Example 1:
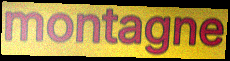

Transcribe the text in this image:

montagne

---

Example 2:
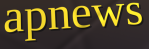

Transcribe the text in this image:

apnews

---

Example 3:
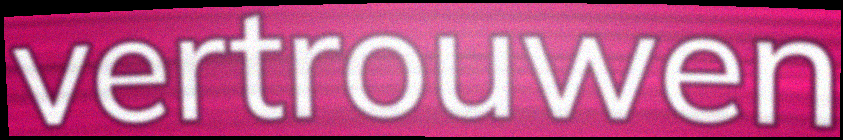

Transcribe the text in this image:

vertrouwen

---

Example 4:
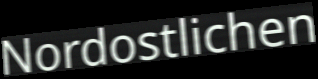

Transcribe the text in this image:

Nordostlichen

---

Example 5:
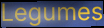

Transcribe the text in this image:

Legumes